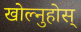
खोल्नुहोस्